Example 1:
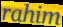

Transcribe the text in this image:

rahim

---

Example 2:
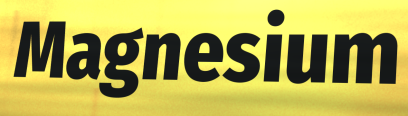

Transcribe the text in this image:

Magnesium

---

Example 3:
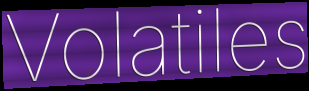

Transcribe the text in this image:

Volatiles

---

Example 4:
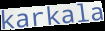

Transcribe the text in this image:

karkala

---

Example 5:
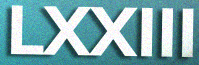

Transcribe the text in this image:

LXXIII